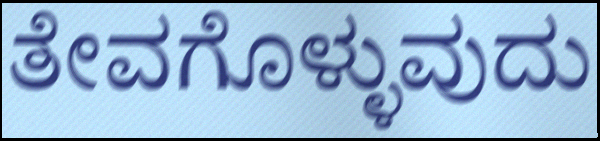
ತೇವಗೊಳ್ಳುವುದು